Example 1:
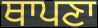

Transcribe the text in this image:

ਥਾਪਣਾ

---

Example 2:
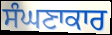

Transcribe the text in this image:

ਸੰਘਣਾਕਾਰ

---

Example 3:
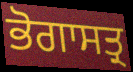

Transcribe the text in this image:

ਭੋਗਾਸਤ੍ਰ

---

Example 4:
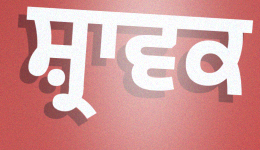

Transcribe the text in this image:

ਸ਼੍ਰਾਵਕ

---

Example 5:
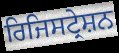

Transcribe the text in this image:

ਰਿਜਿਸਟ੍ਰੇਸ਼ਨ